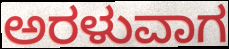
ಅರಳುವಾಗ